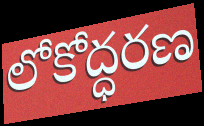
లోకోద్ధరణ